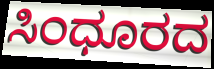
ಸಿಂಧೂರದ